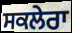
ਸਕਲੇਰਾ